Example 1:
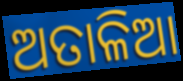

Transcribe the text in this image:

ଅତାଳିଆ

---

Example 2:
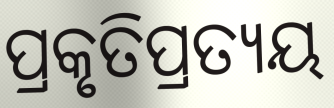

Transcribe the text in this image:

ପ୍ରକୃତିପ୍ରତ୍ୟୟ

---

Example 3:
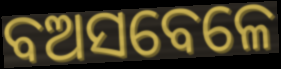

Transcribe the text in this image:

ବଅସବେଳେ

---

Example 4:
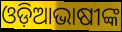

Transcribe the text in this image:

ଓଡ଼ିଆଭାଷୀଙ୍କ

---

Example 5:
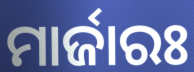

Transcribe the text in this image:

ମାର୍ଜାରଃ